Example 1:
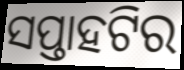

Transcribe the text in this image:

ସପ୍ତାହଟିର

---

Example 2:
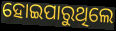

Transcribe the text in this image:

ହୋଇପାରୁଥିଲେ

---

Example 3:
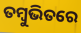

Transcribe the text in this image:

ତମ୍ବୁଭିତରେ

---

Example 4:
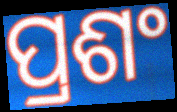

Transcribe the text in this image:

ପ୍ରଶଂ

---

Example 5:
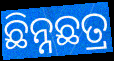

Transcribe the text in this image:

ଛିନ୍ନଛତ୍ର